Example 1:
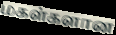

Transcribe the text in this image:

மகள்களான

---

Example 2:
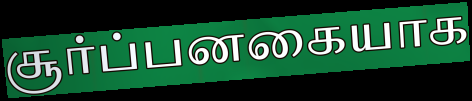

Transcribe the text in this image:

சூர்ப்பனகையாக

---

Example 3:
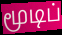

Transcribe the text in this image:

மூடிப்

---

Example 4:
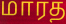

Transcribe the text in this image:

மாரத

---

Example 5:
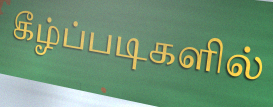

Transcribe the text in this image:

கீழ்ப்படிகளில்